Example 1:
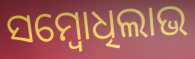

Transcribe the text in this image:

ସମ୍ବୋଧିଲାଭ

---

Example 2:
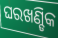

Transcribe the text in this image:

ଘରଖଣ୍ଡିକ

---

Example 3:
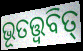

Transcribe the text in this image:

ଭୂତତ୍ତ୍ୱବିତ୍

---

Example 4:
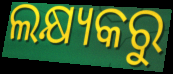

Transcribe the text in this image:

ଲକ୍ଷ୍ୟକରୁ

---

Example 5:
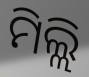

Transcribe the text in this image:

ମିଲ୍ଲି